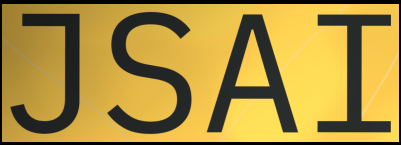
JSAI